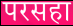
परसहा